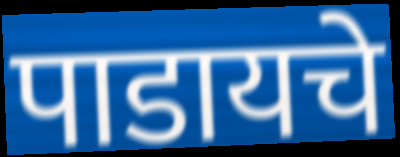
पाडायचे